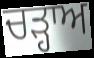
ਚੜ੍ਹਾਅ